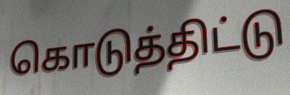
கொடுத்திட்டு